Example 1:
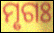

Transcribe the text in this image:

ମୃଗଃ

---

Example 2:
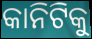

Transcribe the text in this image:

କାନିଟିକୁ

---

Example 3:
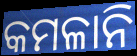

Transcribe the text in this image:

କମଳାନି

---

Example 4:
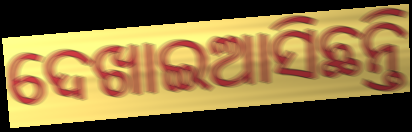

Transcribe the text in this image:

ଦେଖାଇଆସିଛନ୍ତି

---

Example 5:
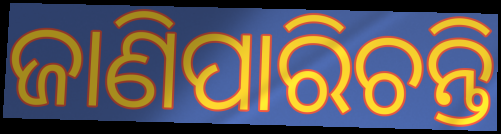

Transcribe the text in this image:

ଜାଣିପାରିଚନ୍ତି